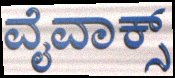
ವೈವಾಕ್ಸ್